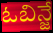
ఓబిన్జే